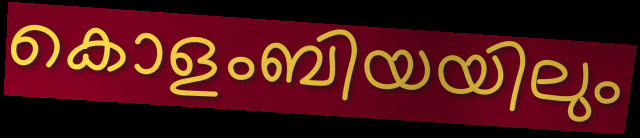
കൊളംബിയയിലും